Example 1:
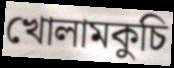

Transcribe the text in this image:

খোলামকুচি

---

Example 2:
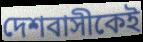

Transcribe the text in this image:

দেশবাসীকেই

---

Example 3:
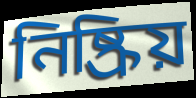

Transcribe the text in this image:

নিষ্ক্রিয়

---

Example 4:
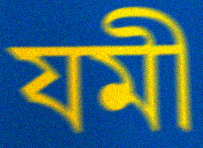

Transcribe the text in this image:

যমী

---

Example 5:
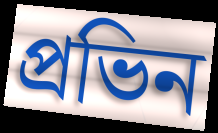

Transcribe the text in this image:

প্রভিন